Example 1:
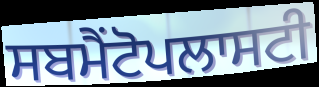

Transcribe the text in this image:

ਸਬਮੈਂਟੋਪਲਾਸਟੀ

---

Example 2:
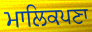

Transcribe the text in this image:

ਮਾਲਿਕਪਣਾ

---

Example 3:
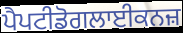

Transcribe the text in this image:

ਪੈਪਟੀਡੋਗਲਾਈਕਨਜ਼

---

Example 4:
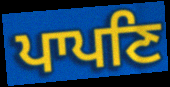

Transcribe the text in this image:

ਪਾਪਣਿ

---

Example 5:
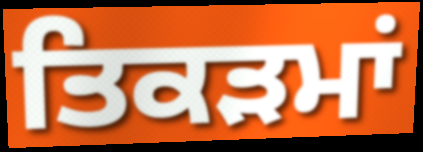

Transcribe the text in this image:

ਤਿਕੜਮਾਂ